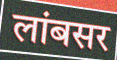
लांबसर